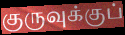
குருவுக்குப்